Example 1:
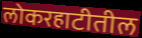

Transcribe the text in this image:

लोकरहाटीतील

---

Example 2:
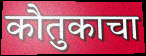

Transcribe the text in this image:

कौतुकाचा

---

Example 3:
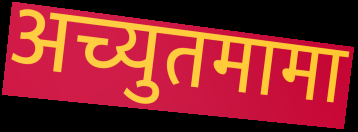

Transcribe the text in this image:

अच्युतमामा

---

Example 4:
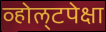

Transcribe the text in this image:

व्होल्टपेक्षा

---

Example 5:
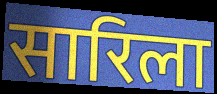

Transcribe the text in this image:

सारिला